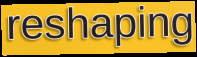
reshaping